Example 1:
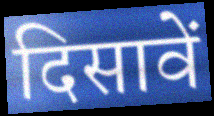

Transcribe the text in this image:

दिसावें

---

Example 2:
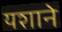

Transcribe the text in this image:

यशाने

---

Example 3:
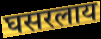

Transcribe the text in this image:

घसरलाय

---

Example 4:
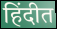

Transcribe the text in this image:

हिंदीत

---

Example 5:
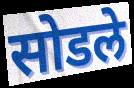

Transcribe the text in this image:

सोडले